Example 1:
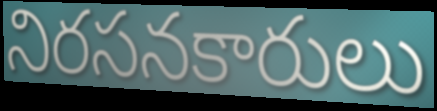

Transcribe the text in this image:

నిరసనకారులు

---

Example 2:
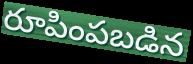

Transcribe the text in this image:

రూపింపబడిన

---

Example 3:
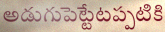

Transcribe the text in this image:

అడుగుపెట్టేటప్పటికి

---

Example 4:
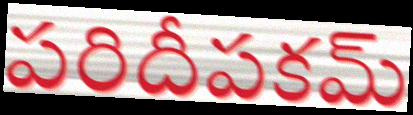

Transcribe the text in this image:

పరిదీపకమ్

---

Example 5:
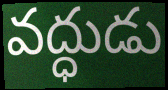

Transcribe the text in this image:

వద్ధుడు